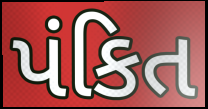
પંકિત